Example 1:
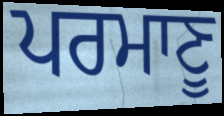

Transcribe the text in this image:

ਪਰਮਾਣੂ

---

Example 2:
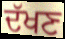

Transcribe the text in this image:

ਦੱਖਣ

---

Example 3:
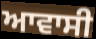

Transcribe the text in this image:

ਆਵਾਸੀ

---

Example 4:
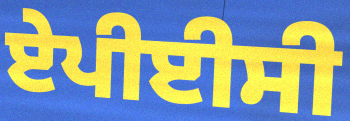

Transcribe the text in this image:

ਏਪੀਈਸੀ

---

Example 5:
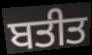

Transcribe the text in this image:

ਬਤੀਤ